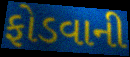
ફોડવાની